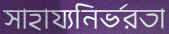
সাহায্যনির্ভরতা